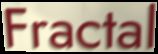
Fractal